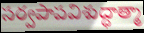
సర్వపాపవిశుద్ధాత్మా